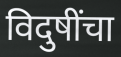
विदुषींचा